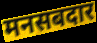
मनसबदार